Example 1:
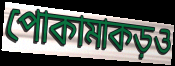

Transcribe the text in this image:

পোকামাকড়ও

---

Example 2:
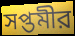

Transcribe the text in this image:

সপ্তমীর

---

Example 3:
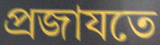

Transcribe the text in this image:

প্রজাযতে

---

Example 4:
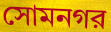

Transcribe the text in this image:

সোমনগর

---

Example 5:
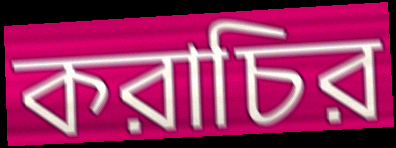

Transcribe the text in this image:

করাচির